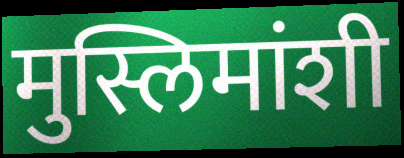
मुस्लिमांशी